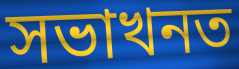
সভাখনত